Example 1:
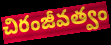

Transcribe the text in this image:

చిరంజీవత్వం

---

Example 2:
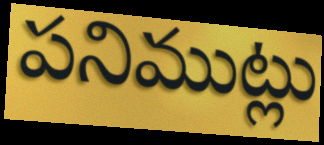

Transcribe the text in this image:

పనిముట్లు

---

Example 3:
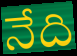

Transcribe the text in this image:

నేది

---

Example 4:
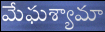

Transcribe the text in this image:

మేఘశ్యామా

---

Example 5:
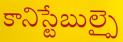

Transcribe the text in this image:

కానిస్టేబుల్పై